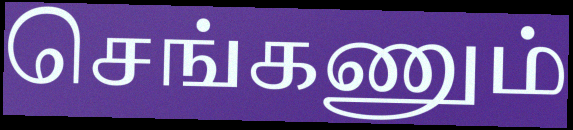
செங்கணும்